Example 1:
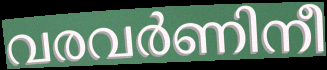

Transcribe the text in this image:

വരവർണിനീ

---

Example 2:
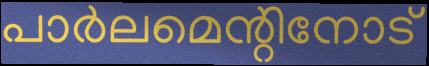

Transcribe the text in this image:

പാർലമെന്റിനോട്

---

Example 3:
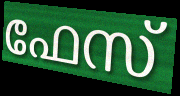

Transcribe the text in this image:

ഫേസ്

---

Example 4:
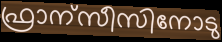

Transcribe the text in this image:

ഫ്രാന്സീസിനോടു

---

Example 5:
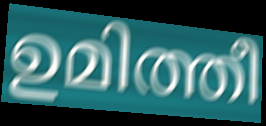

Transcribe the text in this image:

ഉമിത്തീ